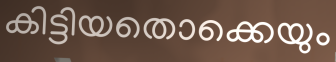
കിട്ടിയതൊക്കെയും